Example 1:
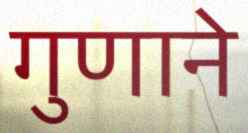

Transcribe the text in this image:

गुणाने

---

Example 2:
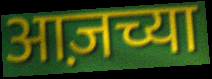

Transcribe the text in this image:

आज़च्या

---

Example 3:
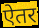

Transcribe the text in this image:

ऐतर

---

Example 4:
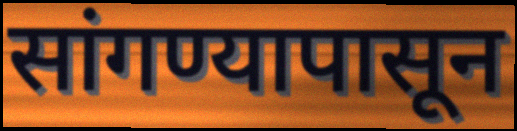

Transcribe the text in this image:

सांगण्यापासून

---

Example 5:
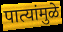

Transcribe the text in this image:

पात्यांमुळे